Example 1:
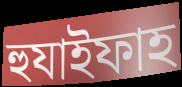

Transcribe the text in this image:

হুযাইফাহ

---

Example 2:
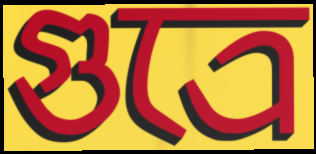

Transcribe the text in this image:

গুত্রে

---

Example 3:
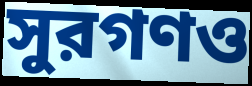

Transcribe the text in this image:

সুরগণও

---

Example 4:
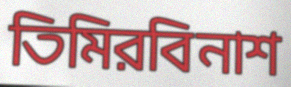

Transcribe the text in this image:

তিমিরবিনাশ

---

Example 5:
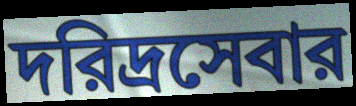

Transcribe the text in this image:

দরিদ্রসেবার